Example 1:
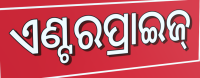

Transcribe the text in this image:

ଏଣ୍ଟରପ୍ରାଇଜ୍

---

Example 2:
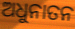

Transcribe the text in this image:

ଅଧୁନାତନ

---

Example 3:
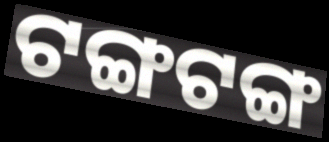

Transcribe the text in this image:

ଟଙ୍ଗଟଙ୍ଗ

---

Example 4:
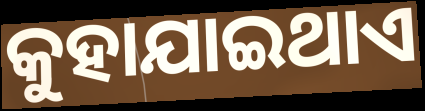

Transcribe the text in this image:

କୁହାଯାଇଥାଏ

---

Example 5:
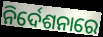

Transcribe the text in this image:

ନିର୍ଦେଶନାରେ